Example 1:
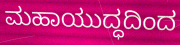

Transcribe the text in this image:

ಮಹಾಯುದ್ಧದಿಂದ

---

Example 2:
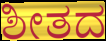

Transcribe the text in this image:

ಶೀತದ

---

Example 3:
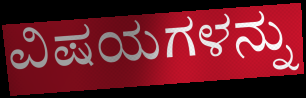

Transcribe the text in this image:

ವಿಷಯಗಳನ್ನು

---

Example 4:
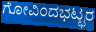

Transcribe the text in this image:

ಗೋವಿಂದಭಟ್ಟರ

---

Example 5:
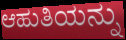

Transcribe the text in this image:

ಆಹುತಿಯನ್ನು